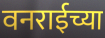
वनराईच्या